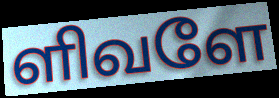
ளிவளே